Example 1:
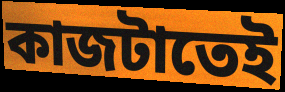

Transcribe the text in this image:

কাজটাতেই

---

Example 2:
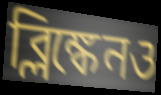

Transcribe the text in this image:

ব্লিঙ্কেনও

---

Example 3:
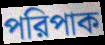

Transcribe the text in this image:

পরিপাক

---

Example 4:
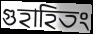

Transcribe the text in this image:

গুহাহিতং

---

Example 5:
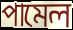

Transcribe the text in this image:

পামেল